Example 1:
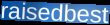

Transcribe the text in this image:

raisedbest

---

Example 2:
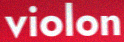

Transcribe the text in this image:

violon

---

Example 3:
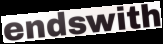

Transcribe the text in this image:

endswith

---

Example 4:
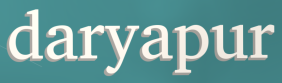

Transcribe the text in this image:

daryapur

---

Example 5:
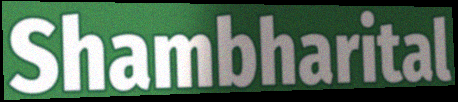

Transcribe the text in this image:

Shambharital